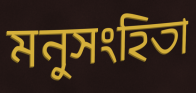
মনুসংহিতা